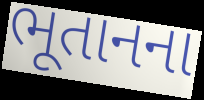
ભૂતાનના